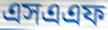
এসএএফ